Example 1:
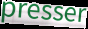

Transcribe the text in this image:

presser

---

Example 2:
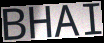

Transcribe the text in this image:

BHAI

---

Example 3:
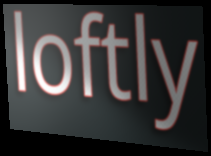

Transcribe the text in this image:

loftly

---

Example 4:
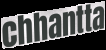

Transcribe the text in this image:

chhantta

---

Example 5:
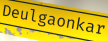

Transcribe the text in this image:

Deulgaonkar